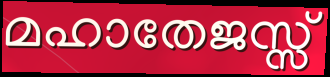
മഹാതേജസ്സ്